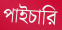
পাইচারি